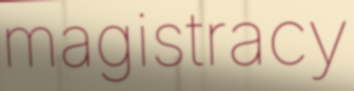
magistracy